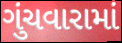
ગુંચવારામાં